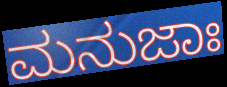
ಮನುಜಾಃ